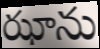
ఝాను